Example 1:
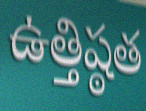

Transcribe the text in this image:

ఉత్తిష్ఠత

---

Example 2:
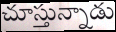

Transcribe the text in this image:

చూస్తున్నాడు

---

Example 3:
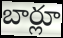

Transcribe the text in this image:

బార్లూ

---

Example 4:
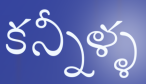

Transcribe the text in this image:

కన్నీళ్ళ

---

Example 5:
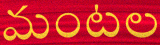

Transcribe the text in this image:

మంటల